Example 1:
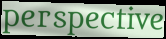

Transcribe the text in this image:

perspective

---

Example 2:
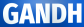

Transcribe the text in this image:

GANDH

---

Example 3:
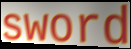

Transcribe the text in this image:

sword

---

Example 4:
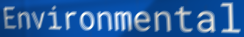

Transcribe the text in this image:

Environmental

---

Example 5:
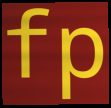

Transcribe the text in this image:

fp